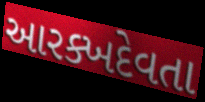
આરક્ખદેવતા